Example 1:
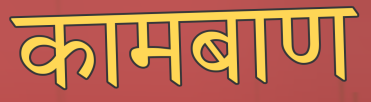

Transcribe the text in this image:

कामबाण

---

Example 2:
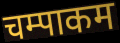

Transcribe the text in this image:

चम्पाकम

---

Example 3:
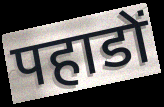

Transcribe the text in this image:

पहाडों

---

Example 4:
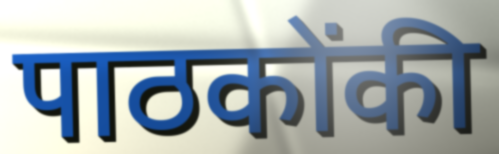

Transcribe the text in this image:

पाठकोंकी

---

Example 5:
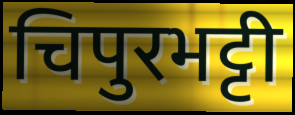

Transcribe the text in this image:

चिपुरभट्टी